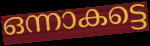
ഒന്നാകട്ടെ